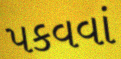
પકવવાં